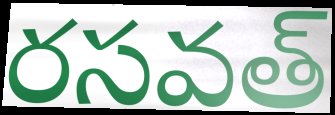
రసవత్